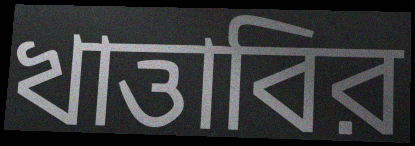
খাত্তাবির